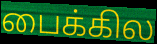
பைக்கில